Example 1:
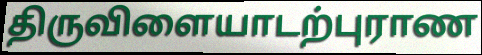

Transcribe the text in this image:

திருவிளையாடற்புராண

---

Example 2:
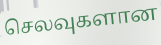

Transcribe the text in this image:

செலவுகளான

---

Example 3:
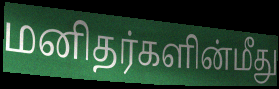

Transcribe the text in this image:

மனிதர்களின்மீது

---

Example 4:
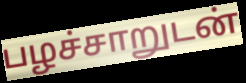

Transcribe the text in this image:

பழச்சாறுடன்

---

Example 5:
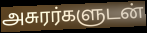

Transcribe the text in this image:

அசுரர்களுடன்